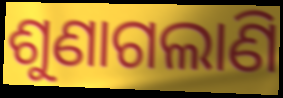
ଶୁଣାଗଲାଣି